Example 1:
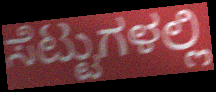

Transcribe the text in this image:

ಸೆಟ್ಟುಗಳಲ್ಲಿ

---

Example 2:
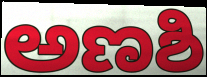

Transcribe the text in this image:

ಅಣಶಿ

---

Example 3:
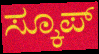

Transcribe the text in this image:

ಸ್ಕೂಪ್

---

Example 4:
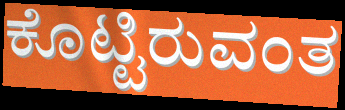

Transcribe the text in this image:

ಕೊಟ್ಟಿರುವಂತ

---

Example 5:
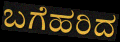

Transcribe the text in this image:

ಬಗೆಹರಿದ